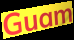
Guam